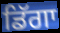
ਡਿੱਗਾ